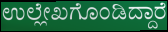
ಉಲ್ಲೇಖಗೊಂಡಿದ್ದಾರೆ